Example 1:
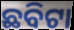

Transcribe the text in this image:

ଛବିଟା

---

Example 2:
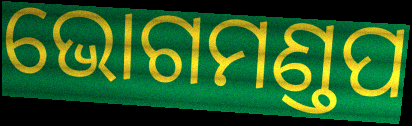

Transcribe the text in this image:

ଭୋଗମଣ୍ଡପ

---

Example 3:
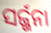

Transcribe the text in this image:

ସର୍ଜ୍ଜନା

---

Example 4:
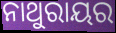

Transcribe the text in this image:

ନାଥୁରାୟର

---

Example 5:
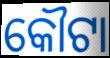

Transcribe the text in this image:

କୌଟା